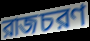
রাজচরণ